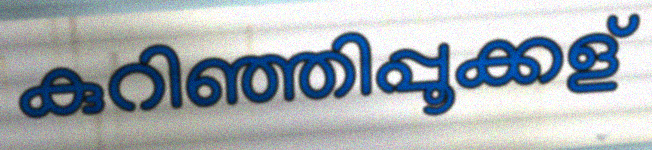
കുറിഞ്ഞിപ്പൂക്കള്